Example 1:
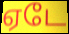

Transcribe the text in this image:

ஏடே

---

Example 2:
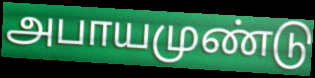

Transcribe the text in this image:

அபாயமுண்டு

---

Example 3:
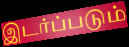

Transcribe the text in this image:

இடர்ப்படும்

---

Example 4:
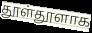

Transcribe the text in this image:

தூள்தூளாக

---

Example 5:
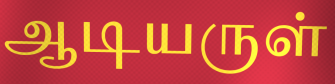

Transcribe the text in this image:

ஆடியருள்